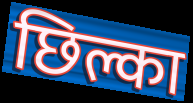
छिल्का